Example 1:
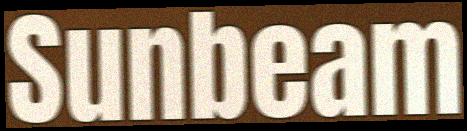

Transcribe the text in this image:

Sunbeam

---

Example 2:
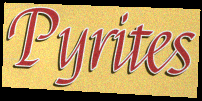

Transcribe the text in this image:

Pyrites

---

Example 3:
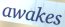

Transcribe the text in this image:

awakes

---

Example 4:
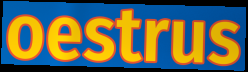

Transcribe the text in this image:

oestrus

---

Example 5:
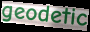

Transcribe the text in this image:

geodetic